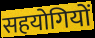
सहयोगियों